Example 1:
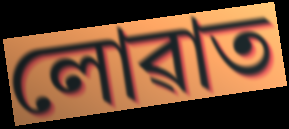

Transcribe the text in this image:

লোৱাত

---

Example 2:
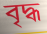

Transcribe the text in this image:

বৃদ্ধ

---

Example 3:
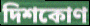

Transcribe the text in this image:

দিশকোণ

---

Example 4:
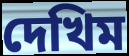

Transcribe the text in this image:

দেখিম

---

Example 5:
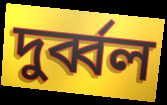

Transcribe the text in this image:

দুৰ্ব্বল